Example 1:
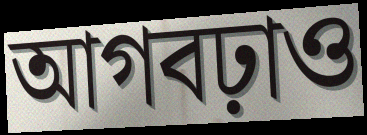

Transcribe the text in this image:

আগবঢ়াও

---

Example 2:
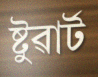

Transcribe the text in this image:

ষ্টুৱাৰ্ট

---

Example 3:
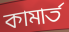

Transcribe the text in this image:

কামাৰ্ত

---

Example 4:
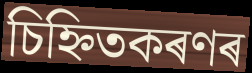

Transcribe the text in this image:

চিহ্নিতকৰণৰ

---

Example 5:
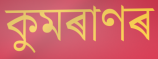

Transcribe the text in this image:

কুমৰাণৰ